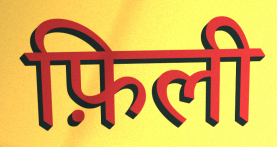
फ़िली